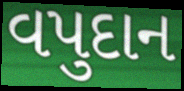
વપુદાન